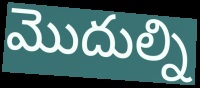
మొదుల్ని